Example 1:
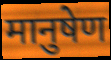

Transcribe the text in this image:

मानुषेण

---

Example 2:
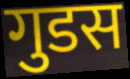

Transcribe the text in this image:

गुडस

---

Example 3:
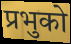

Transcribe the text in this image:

प्रभुको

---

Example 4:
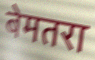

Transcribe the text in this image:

बेमतरा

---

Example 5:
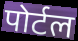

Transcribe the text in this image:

पोर्टल